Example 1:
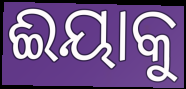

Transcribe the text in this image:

ଈୟାକୁ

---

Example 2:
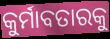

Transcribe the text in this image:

କୁର୍ମାବତାରକୁ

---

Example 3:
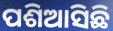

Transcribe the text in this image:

ପଶିଆସିଛି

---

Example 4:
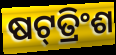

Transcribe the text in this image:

ଷଟ୍‌ତ୍ରିଂଶ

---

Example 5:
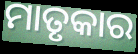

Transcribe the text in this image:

ମାତୃକାର